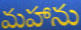
మహాను